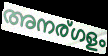
അനര്ഗളം